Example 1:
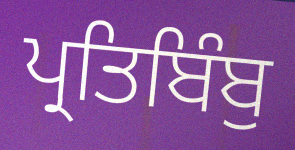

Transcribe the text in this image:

ਪ੍ਰਤਿਬਿੰਬੁ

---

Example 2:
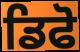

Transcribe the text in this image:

ਡਿਫੋ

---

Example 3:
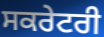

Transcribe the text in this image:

ਸਕਰੇਟਰੀ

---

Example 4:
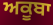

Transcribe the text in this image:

ਅਕੂਬਾ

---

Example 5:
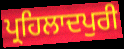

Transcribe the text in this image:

ਪ੍ਰਹਿਲਾਦਪੁਰੀ